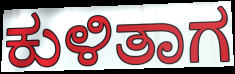
ಕುಳಿತಾಗ